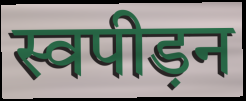
स्वपीड़न